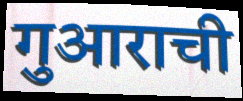
गुआराची